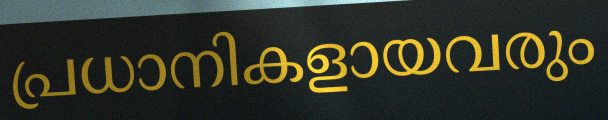
പ്രധാനികളായവരും